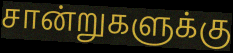
சான்றுகளுக்கு